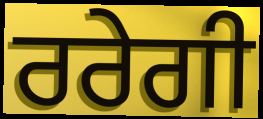
ਰਰੇਗੀ